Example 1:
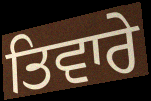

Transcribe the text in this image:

ਤਿਵਾਰੇ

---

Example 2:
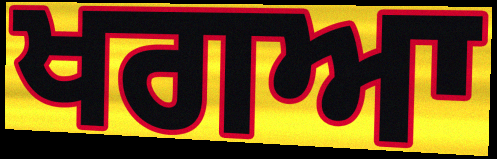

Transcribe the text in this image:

ਖਗਆ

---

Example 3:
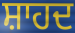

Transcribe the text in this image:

ਸ਼ਾਹਦ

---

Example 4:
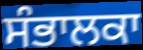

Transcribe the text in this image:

ਸੰਭਾਲਕਾ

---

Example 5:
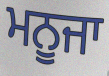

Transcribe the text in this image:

ਮਨੂਜਾ